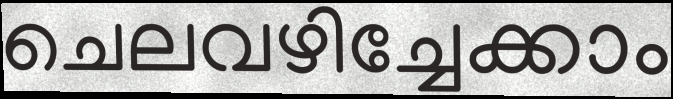
ചെലവഴിച്ചേക്കാം